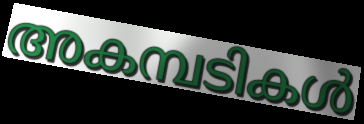
അകമ്പടികൾ